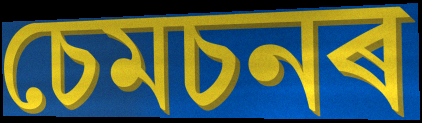
চেমচনৰ